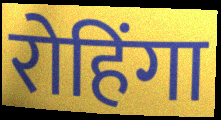
रोहिंगा